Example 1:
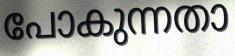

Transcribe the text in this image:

പോകുന്നതാ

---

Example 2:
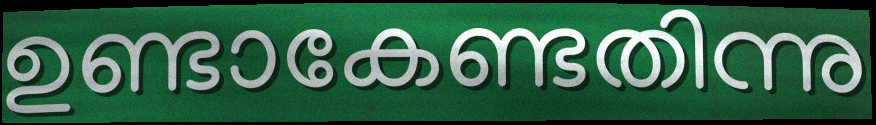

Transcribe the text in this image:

ഉണ്ടാകേണ്ടതിന്നു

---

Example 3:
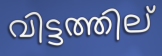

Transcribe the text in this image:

വിട്ടത്തില്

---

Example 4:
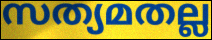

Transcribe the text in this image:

സത്യമതല്ല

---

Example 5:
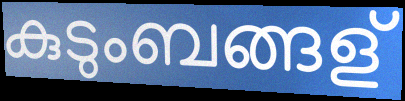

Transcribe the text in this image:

കുടുംബങ്ങള്